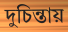
দুচিন্তায়